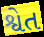
શ્વેત